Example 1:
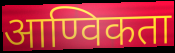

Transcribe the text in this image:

आण्विकता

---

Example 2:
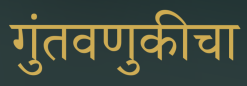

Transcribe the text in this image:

गुंतवणुकीचा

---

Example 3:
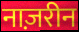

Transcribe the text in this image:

नाज़रीन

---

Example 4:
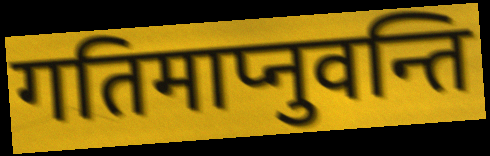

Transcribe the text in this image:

गतिमाप्नुवन्ति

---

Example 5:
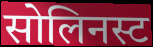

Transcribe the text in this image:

सोलिनस्ट